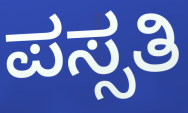
ಪಸ್ಸತಿ